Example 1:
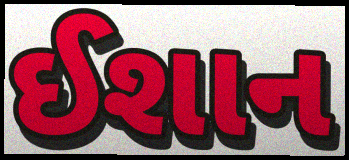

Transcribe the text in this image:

ઈશાન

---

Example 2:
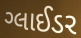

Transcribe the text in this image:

ગ્લાઈડર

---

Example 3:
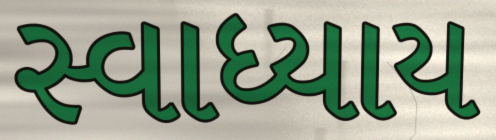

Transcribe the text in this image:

સ્વાધ્યાય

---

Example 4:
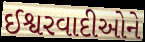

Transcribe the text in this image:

ઈશ્વરવાદીઓને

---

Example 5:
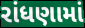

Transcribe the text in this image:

રાંધણામાં